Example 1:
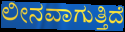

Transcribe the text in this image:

ಲೀನವಾಗುತ್ತಿದೆ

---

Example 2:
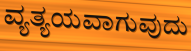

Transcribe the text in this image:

ವ್ಯತ್ಯಯವಾಗುವುದು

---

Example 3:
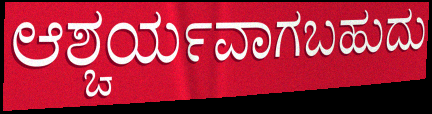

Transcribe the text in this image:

ಆಶ್ಚರ್ಯವಾಗಬಹುದು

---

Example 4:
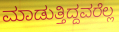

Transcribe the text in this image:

ಮಾಡುತ್ತಿದ್ದವರೆಲ್ಲ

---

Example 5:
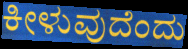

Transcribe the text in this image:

ಕೀಳುವುದೆಂದು